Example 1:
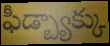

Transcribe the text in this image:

ఫీడ్బ్యాక్కు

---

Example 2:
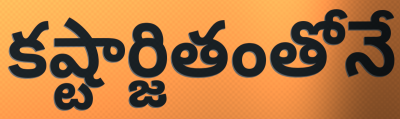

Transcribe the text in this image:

కష్టార్జితంతోనే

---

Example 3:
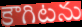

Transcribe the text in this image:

కౌగిటను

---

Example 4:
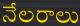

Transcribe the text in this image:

నేలరాలు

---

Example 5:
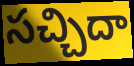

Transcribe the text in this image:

సచ్చిదా